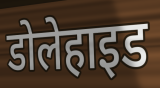
डोलेहाइड